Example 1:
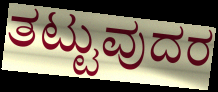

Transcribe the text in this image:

ತಟ್ಟುವುದರ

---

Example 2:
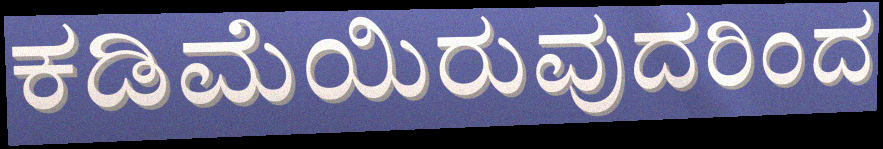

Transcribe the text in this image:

ಕಡಿಮೆಯಿರುವುದರಿಂದ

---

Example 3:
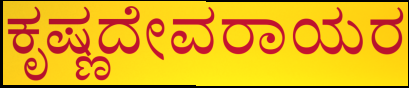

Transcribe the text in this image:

ಕೃಷ್ಣದೇವರಾಯರ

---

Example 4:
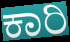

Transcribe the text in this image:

ಕಾರಿ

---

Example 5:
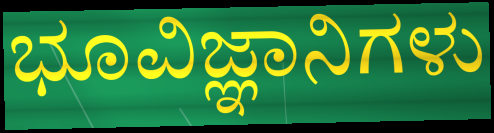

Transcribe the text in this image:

ಭೂವಿಜ್ಞಾನಿಗಳು